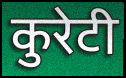
कुरेटी